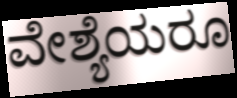
ವೇಶ್ಯೆಯರೂ